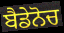
ਬੈਡੇਨੋਚ